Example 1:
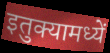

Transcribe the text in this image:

इतुक्यामध्यें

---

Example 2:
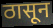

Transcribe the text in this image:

ठासून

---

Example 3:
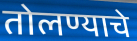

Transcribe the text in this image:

तोलण्याचे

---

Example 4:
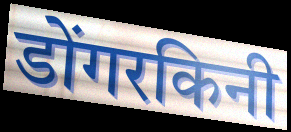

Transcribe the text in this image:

डोंगरकिनी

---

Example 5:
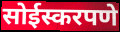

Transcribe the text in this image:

सोईस्करपणे